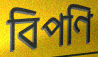
বিপণি